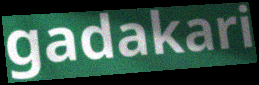
gadakari